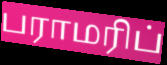
பராமரிப்